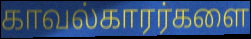
காவல்காரர்களை